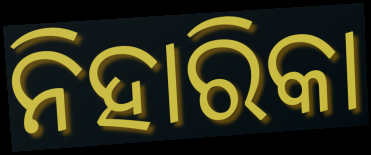
ନିହାରିକା